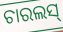
ଚାରଲସ୍